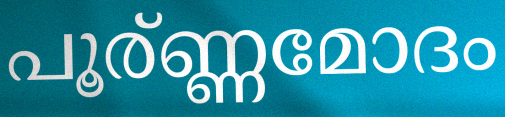
പൂര്ണ്ണമോദം